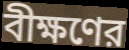
বীক্ষণের